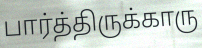
பார்த்திருக்காரு